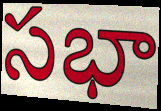
సభా